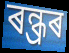
ৰন্ধ্ৰৰ